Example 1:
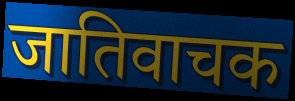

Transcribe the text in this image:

जातिवाचक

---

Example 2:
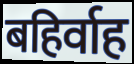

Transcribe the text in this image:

बहिर्वाह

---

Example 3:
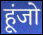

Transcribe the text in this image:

हूंजो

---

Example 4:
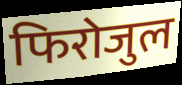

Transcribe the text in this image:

फिरोजुल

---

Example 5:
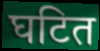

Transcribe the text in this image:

घटित